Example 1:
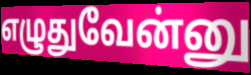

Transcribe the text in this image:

எழுதுவேன்னு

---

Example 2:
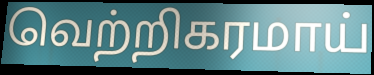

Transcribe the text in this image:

வெற்றிகரமாய்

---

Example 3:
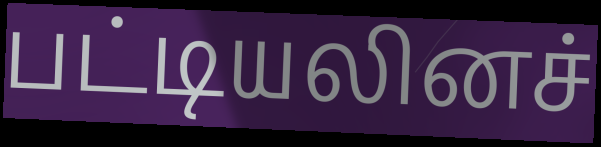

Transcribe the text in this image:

பட்டியலினச்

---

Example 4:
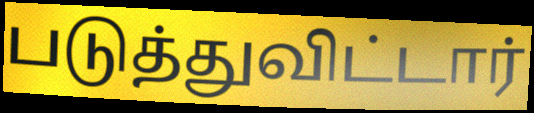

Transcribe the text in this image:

படுத்துவிட்டார்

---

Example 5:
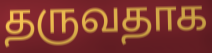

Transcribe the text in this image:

தருவதாக